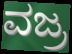
ವಜ್ರ